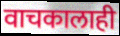
वाचकालाही